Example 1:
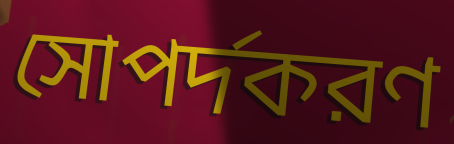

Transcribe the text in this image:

সোপর্দকরণ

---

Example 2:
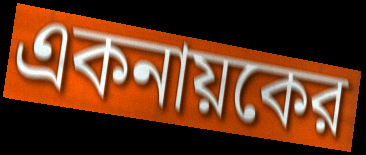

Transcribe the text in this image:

একনায়কের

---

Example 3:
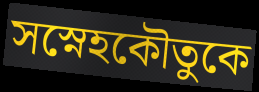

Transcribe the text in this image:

সস্নেহকৌতুকে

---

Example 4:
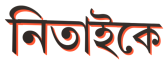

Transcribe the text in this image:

নিতাইকে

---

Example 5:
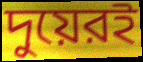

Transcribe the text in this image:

দুয়েরই